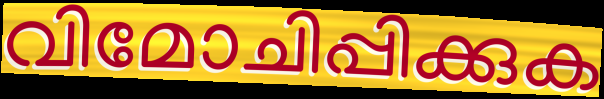
വിമോചിപ്പിക്കുക